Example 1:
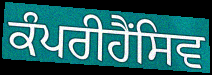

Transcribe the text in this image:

ਕੰਪਰੀਹੈਂਸਿਵ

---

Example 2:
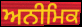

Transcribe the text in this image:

ਅਨੀਮਿਕ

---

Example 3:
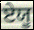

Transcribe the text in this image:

ਏਯੂ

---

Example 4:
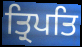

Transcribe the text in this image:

ਤ੍ਰਿਪਤਿ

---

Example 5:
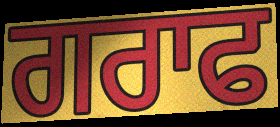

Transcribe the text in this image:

ਗਰਾਫ